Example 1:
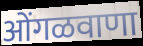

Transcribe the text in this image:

ओंगळवाणा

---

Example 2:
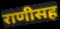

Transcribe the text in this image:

राणीसह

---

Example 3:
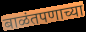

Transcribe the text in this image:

बाळंतपणाच्या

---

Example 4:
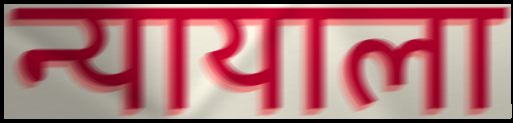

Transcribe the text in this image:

न्यायाला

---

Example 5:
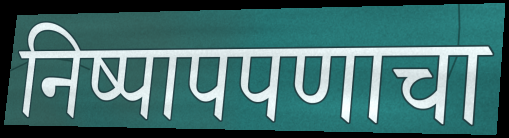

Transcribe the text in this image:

निष्पापपणाचा